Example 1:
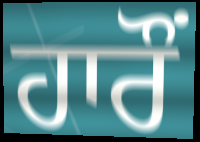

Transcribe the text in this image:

ਹਾਰੌਂ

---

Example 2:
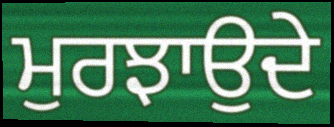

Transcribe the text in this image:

ਮੁਰਝਾਉਦੇ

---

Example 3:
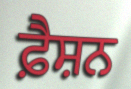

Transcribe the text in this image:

ਫ਼ੈਸ਼ਨ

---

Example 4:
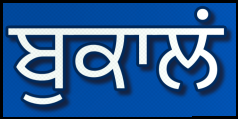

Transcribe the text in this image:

ਬੁਕਾਲਂ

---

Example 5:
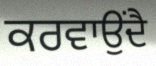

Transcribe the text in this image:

ਕਰਵਾਉਂਦੈ